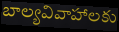
బాల్యవివాహాలకు